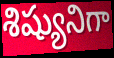
శిష్యునిగా